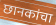
छानकांचा